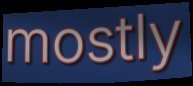
mostly